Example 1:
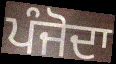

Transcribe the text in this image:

ਪੰਜੋਦਾ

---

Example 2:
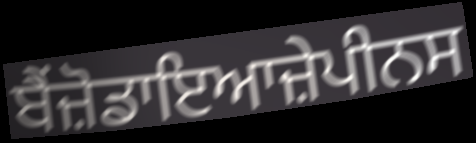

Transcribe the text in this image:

ਬੈਂਜ਼ੋਡਾਇਆਜ਼ੇਪੀਨਸ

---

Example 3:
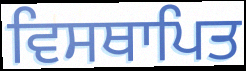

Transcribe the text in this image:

ਵਿਸਥਾਪਿਤ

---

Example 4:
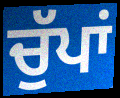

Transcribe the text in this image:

ਚੁੱਪਾਂ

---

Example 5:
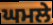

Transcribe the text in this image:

ਘਮਲੇ